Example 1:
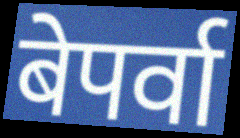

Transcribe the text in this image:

बेपर्वा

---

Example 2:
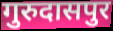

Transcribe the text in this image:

गुरुदासपुर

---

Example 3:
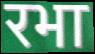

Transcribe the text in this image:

रभा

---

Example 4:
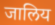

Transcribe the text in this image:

जालिय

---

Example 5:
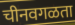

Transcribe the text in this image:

चीनवगळता